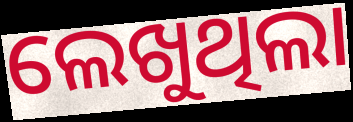
ଲେଖୁଥିଲା